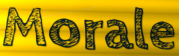
Morale